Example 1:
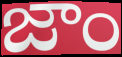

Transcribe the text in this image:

జాం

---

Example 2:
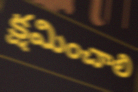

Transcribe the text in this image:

క్షమించాలి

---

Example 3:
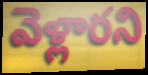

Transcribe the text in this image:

వెళ్లారని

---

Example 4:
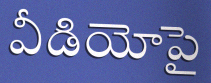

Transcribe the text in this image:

వీడియోపై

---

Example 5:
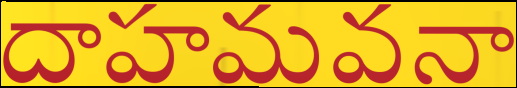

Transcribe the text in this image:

దాహమవనా